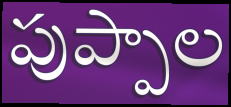
పుప్పాల